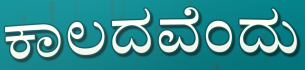
ಕಾಲದವೆಂದು